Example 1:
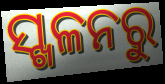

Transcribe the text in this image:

ସ୍ଖଳନରୁ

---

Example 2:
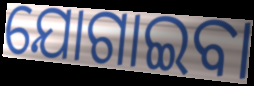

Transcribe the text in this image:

ଯୋଗାଇବା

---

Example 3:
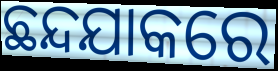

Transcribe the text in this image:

ଛନ୍ଦଯାକରେ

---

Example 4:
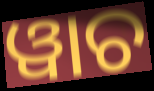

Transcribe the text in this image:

ୱାଚ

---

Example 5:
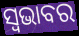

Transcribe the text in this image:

ସ୍ଵଭାବର